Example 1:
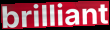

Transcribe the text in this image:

brilliant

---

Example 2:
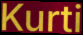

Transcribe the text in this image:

Kurti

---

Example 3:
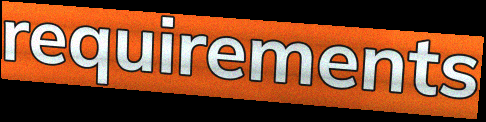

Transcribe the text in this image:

requirements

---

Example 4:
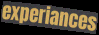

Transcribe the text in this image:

experiances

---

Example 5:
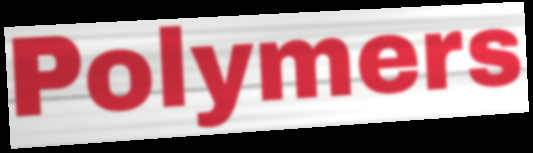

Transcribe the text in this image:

Polymers